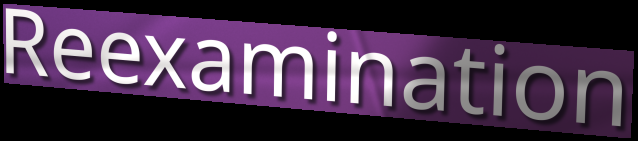
Reexamination